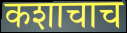
कशाचाच